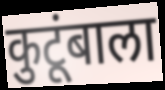
कुटूंबाला